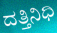
ದತ್ತಿನಿಧಿ